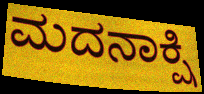
ಮದನಾಕ್ಷಿ